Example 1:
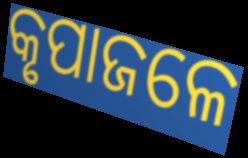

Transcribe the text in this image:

କୃପାଜଳେ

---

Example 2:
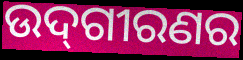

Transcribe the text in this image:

ଉଦ୍‌ଗୀରଣର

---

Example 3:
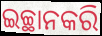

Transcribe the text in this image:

ଇଚ୍ଛାନକରି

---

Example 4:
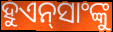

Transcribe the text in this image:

ହୁଏନ୍‌ସାଂଙ୍କୁ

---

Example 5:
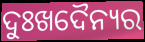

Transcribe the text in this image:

ଦୁଃଖଦୈନ୍ୟର